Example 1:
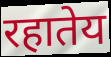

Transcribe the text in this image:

रहातेय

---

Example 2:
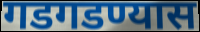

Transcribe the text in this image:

गडगडण्यास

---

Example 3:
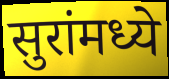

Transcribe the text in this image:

सुरांमध्ये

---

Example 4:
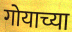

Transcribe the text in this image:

गोयाच्या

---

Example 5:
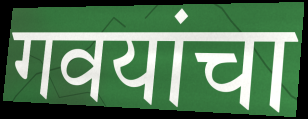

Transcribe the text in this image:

गवयांचा